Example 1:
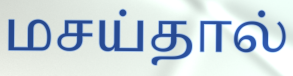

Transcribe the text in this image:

மசய்தால்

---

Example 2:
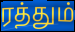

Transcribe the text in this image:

ரத்தும்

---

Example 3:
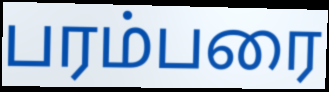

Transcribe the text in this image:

பரம்பரை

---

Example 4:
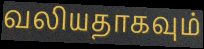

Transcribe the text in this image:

வலியதாகவும்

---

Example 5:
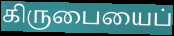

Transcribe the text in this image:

கிருபையைப்